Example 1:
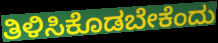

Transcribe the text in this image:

ತಿಳಿಸಿಕೊಡಬೇಕೆಂದು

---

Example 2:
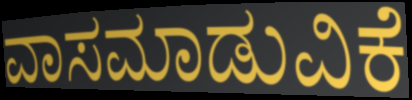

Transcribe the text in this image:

ವಾಸಮಾಡುವಿಕೆ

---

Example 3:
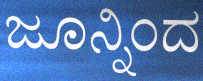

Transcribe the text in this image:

ಜೂನ್ನಿಂದ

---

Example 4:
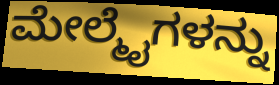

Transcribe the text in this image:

ಮೇಲ್ಮೈಗಳನ್ನು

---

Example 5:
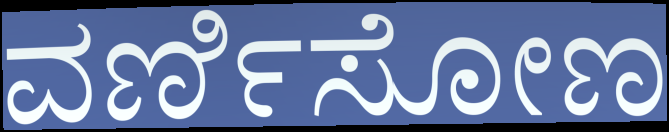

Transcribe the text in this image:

ವರ್ಣಿಸೋಣ